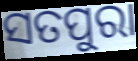
ସତପୁରା